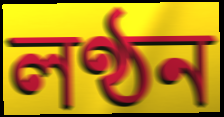
লণ্ঠন